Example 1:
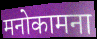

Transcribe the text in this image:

मनोकामना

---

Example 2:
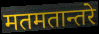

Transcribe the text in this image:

मतमतान्तरे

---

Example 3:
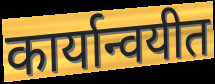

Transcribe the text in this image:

कार्यान्वयीत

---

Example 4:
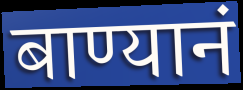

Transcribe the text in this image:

बाण्यानं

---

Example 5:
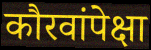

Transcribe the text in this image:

कौरवांपेक्षा